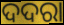
ଦଦରା